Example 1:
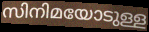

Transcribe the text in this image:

സിനിമയോടുള്ള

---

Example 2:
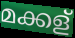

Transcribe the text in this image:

മക്കള്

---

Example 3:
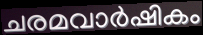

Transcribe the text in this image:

ചരമവാർഷികം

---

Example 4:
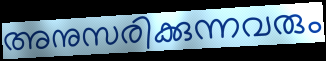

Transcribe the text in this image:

അനുസരിക്കുന്നവരും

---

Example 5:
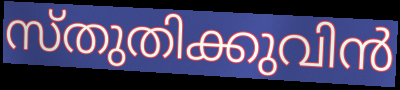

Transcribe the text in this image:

സ്തുതിക്കുവിൻ